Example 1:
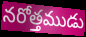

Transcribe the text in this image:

నరోత్తముడు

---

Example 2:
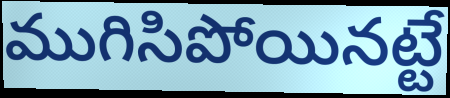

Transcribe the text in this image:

ముగిసిపోయినట్టే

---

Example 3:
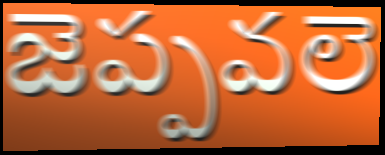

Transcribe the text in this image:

జెప్పవలె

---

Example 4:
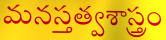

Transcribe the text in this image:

మనస్తత్వశాస్త్రం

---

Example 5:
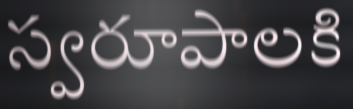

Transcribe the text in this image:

స్వరూపాలకి